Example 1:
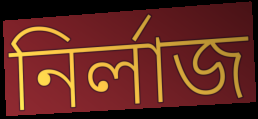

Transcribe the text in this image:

নির্লাজ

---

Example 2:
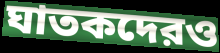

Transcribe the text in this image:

ঘাতকদেরও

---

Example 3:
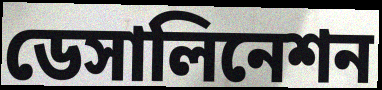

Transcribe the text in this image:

ডেসালিনেশন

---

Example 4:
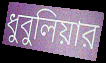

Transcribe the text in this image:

ধুবুলিয়ার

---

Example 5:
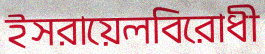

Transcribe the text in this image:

ইসরায়েলবিরোধী